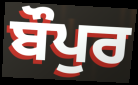
ਬੌਪੁਰ